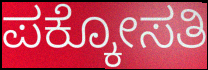
ಪಕ್ಕೋಸತಿ